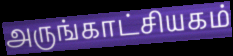
அருங்காட்சியகம்